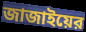
জাজাইয়ের